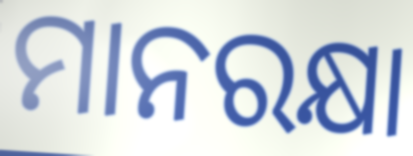
ମାନରକ୍ଷା